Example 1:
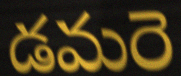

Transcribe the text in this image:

డమరె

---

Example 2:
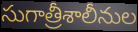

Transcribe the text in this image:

సుగాత్రీశాలీనుల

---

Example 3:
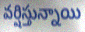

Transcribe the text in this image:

వర్షిస్తున్నాయి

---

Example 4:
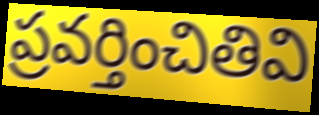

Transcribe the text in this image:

ప్రవర్తించితివి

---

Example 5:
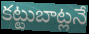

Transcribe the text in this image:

కట్టుబాట్లనే